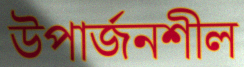
উপার্জনশীল